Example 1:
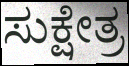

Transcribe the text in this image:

ಸುಕ್ಷೇತ್ರ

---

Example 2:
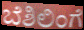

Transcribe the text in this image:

ಬೆಶಿಲಿಂಗೆ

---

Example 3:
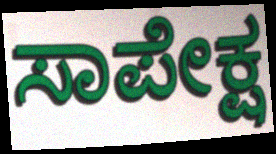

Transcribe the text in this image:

ಸಾಪೇಕ್ಷ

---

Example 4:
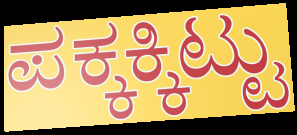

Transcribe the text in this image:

ಪಕ್ಕಕ್ಕಿಟ್ಟು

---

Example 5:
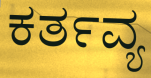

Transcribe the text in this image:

ಕರ್ತವ್ಯ